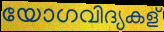
യോഗവിദ്യകള്